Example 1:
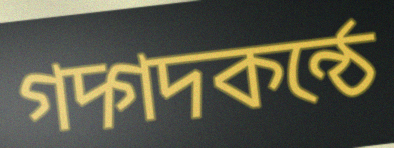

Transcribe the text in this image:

গদ্গদকন্ঠে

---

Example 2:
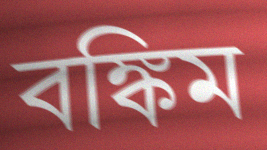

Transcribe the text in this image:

বঙ্কিম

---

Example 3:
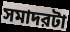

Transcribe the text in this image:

সমাদরটা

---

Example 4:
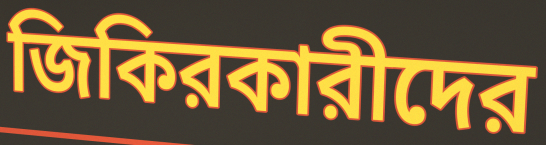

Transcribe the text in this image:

জিকিরকারীদের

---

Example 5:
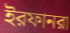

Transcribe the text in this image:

ইরফানরা